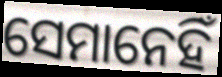
ସେମାନେହିଁ